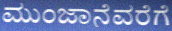
ಮುಂಜಾನೆವರೆಗೆ